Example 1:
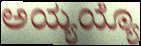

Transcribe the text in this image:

ಅಯ್ಯಯ್ಯೊ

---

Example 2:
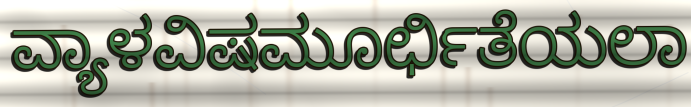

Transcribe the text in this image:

ವ್ಯಾಳವಿಷಮೂರ್ಛಿತೆಯಲಾ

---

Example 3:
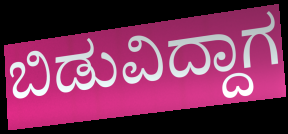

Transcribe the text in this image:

ಬಿಡುವಿದ್ದಾಗ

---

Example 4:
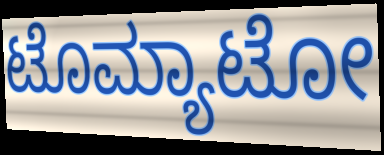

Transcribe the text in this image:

ಟೊಮ್ಯಾಟೋ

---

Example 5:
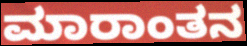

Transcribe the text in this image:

ಮಾರಾಂತನ